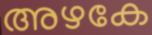
അഴകേ